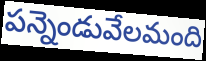
పన్నెండువేలమంది